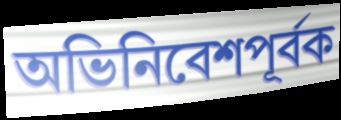
অভিনিবেশপূর্বক